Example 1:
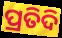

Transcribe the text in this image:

ପ୍ରତିଦି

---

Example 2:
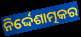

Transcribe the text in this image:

ନିର୍ଦ୍ଦେଶାତ୍ମକର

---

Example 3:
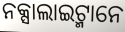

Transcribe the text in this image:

ନକ୍ସାଲାଇଟ୍ମାନେ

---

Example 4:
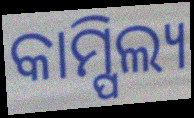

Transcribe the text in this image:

କାମ୍ପିଲ୍ୟ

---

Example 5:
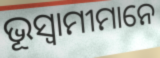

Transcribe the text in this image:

ଭୂସ୍ୱାମୀମାନେ